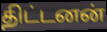
திட்டனன்